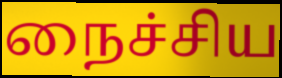
நைச்சிய